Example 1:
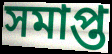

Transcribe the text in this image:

সমাপ্ত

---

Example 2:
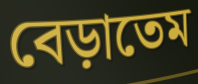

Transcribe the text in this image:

বেড়াতেম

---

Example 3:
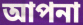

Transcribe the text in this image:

আপনা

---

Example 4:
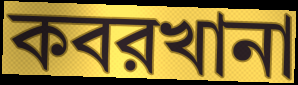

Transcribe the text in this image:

কবরখানা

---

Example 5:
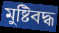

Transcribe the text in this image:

মুষ্টিবদ্ধ